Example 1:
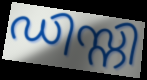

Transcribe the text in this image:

ഡിസ്നി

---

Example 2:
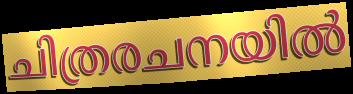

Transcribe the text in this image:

ചിത്രരചനയിൽ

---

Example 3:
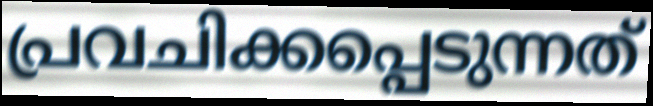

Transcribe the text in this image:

പ്രവചിക്കപ്പെടുന്നത്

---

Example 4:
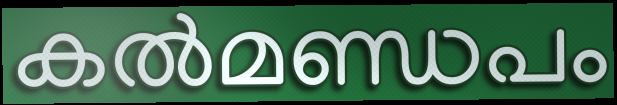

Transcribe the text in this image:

കൽമണ്ഡപം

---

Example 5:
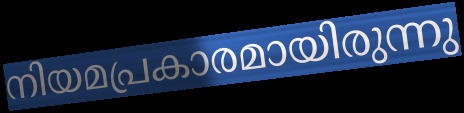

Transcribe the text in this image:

നിയമപ്രകാരമായിരുന്നു